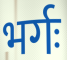
भर्गः